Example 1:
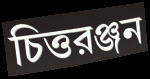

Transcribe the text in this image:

চিত্তরঞ্জন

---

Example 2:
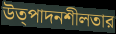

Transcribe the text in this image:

উত্পাদনশীলতার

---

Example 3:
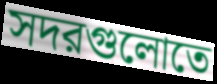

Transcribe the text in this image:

সদরগুলোতে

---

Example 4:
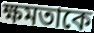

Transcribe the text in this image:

ক্ষমতাকে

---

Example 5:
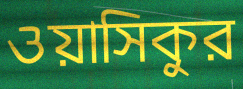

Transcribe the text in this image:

ওয়াসিকুর